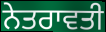
ਨੇਤਰਾਵਤੀ